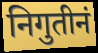
निगुतीनं